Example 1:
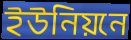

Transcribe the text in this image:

ইউনিয়নে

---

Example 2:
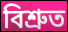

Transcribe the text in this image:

বিশ্রুত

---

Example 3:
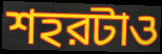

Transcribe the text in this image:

শহরটাও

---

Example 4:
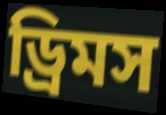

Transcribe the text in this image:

ড্রিমস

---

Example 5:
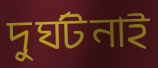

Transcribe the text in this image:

দুর্ঘটনাই